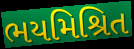
ભયમિશ્રિત